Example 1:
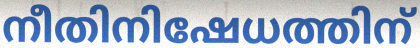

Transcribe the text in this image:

നീതിനിഷേധത്തിന്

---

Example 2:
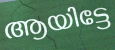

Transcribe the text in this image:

ആയിട്ടേ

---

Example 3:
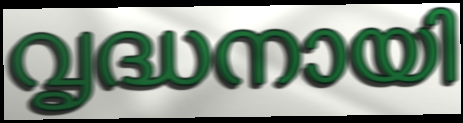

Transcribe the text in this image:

വൃദ്ധനായി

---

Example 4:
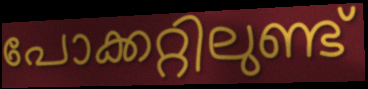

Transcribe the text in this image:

പോക്കറ്റിലുണ്ട്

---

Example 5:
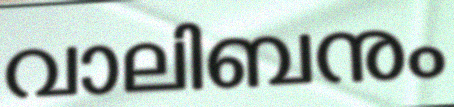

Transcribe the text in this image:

വാലിബനും